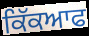
ਕਿੱਕਆਫ